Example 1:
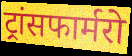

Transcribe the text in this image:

ट्रांसफार्मरो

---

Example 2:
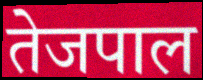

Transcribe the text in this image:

तेजपाल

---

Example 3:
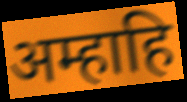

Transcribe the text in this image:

अम्हाहि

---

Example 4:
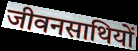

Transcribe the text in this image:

जीवनसाथियों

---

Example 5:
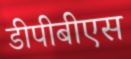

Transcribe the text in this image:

डीपीबीएस